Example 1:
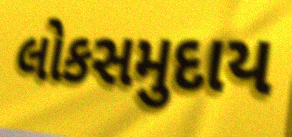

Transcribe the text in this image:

લોકસમુદાય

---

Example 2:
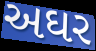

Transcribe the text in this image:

અઘર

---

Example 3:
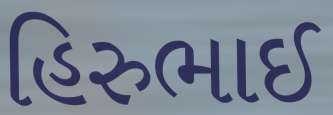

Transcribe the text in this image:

હિરુભાઈ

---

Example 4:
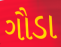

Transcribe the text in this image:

ગૌડા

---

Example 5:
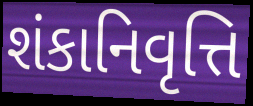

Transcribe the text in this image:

શંકાનિવૃત્તિ